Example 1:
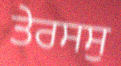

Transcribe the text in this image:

ਤੇਰਸਸੁ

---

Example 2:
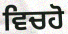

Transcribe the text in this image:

ਵਿਚਹੋ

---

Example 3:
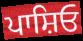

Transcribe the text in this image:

ਪਾਸ਼ਿਓ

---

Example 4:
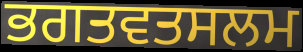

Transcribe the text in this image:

ਭਗਤਵਤਸਲਮ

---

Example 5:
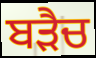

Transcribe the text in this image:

ਬੜੈਚ